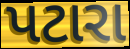
પટારા